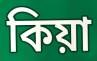
কিয়া